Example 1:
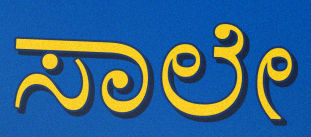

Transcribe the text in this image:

ಸಾಲೇ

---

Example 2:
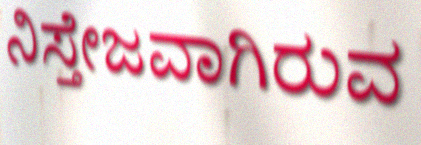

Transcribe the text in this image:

ನಿಸ್ತೇಜವಾಗಿರುವ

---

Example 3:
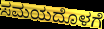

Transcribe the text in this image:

ಸಮಯದೊಳಗೆ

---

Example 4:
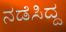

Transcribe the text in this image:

ನಡೆಸಿದ್ದ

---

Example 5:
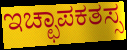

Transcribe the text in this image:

ಇಚ್ಛಾಪಕತಸ್ಸ